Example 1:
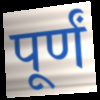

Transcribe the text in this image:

पूर्णं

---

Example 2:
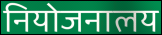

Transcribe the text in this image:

नियोजनालय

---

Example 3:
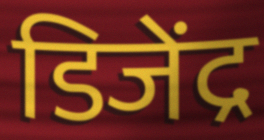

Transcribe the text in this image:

डिजेंद्र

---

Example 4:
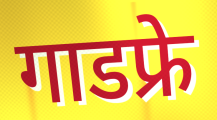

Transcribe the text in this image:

गाडफ्रे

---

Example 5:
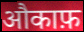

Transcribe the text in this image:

औकाफ़